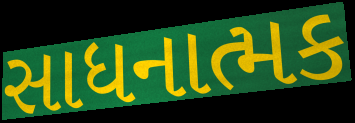
સાધનાત્મક